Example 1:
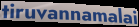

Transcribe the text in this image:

tiruvannamalai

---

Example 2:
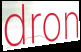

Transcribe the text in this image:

dron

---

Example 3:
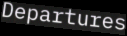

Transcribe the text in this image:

Departures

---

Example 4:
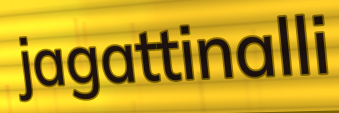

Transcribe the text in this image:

jagattinalli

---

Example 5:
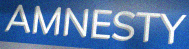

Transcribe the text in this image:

AMNESTY